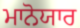
ਮਾਨੋਯਾਰ